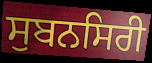
ਸੁਬਨਸਿਰੀ